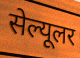
सेल्यूलर